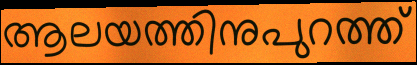
ആലയത്തിനുപുറത്ത്